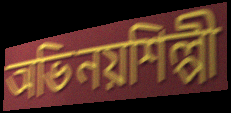
অভিনয়শিল্পী